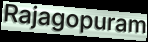
Rajagopuram